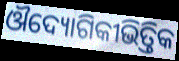
ଔଦ୍ୟୋଗିକୀଭିତ୍ତିକ